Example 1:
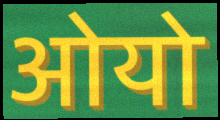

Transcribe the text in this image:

ओयो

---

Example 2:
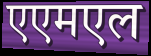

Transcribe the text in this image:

एएमएल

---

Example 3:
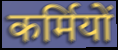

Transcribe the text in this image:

कर्मियों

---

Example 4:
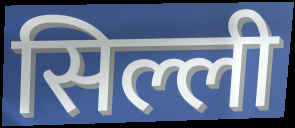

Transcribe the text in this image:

सिल्ली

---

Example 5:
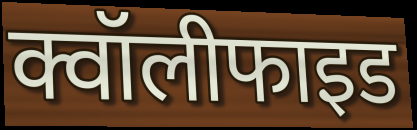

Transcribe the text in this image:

क्वॉलीफाइड